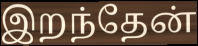
இறந்தேன்